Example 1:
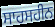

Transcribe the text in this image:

ਸਾਹਸਹੀਨ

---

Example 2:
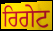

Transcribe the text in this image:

ਰਿਗੇਟ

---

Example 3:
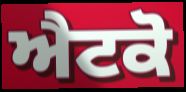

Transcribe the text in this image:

ਐਟਕੋ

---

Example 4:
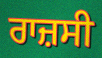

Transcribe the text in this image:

ਰਾਜ਼ਸੀ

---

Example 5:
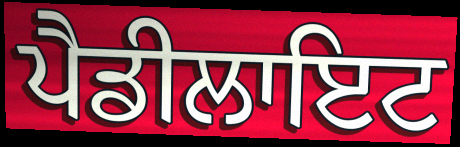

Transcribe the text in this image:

ਪੈਡੀਲਾਇਟ